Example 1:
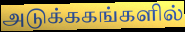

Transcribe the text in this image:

அடுக்ககங்களில்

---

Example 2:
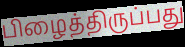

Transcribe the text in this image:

பிழைத்திருப்பது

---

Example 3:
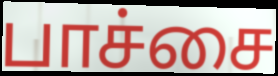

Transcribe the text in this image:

பாச்சை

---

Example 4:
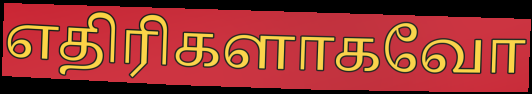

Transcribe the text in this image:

எதிரிகளாகவோ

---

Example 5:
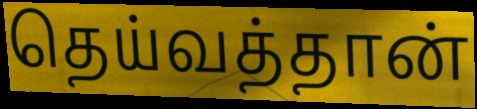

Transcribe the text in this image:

தெய்வத்தான்